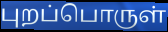
புறப்பொருள்